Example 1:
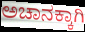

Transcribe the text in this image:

ಅಚಾನಕ್ಕಾಗಿ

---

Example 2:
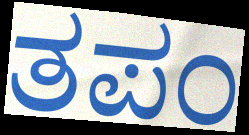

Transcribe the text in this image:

ತಪಂ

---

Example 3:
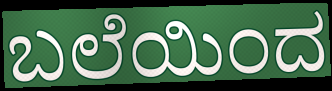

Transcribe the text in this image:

ಬಲೆಯಿಂದ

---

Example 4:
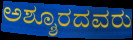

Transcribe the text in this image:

ಅಶ್ಶೂರದವರು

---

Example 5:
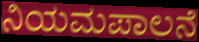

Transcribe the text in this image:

ನಿಯಮಪಾಲನೆ